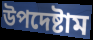
উপদেষ্টাম